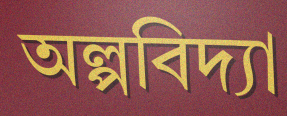
অল্পবিদ্যা